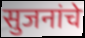
सुजनांचे